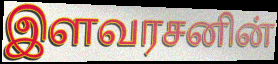
இளவரசனின்